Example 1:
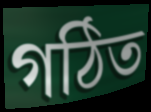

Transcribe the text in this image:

গঠিত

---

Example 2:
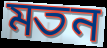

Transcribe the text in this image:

মতন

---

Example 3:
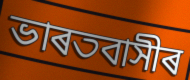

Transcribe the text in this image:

ভাৰতবাসীৰ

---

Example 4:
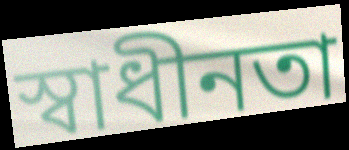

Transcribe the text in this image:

স্বাধীনতা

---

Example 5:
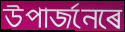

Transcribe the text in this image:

উপাৰ্জনেৰে